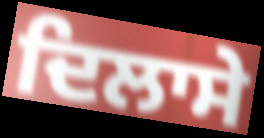
ਦਿਲਾਸੇ